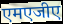
एमएजीए